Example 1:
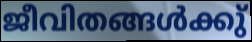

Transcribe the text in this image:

ജീവിതങ്ങൾക്കു്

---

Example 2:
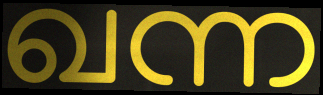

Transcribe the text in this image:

ഖന്ന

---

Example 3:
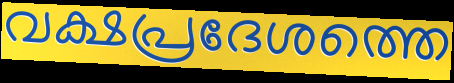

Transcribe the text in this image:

വക്ഷപ്രദേശത്തെ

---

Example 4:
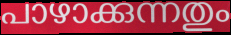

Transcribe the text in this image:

പാഴാക്കുന്നതും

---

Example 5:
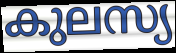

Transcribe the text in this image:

കുലസ്യ